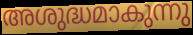
അശുദ്ധമാകുന്നു